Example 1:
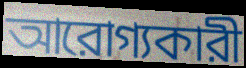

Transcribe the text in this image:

আরোগ্যকারী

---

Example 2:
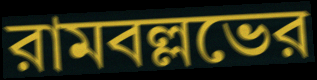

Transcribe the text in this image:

রামবল্লভের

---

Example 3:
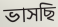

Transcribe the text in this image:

ভাসছি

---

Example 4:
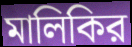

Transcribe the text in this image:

মালিকির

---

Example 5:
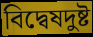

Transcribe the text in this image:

বিদ্বেষদুষ্ট